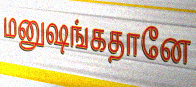
மனுஷங்கதானே